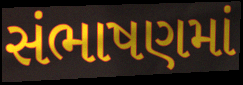
સંભાષણમાં